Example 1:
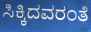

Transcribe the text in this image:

ಸಿಕ್ಕಿದವರಂತೆ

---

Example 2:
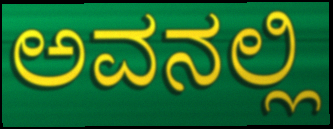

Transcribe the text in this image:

ಅವನಲ್ಲಿ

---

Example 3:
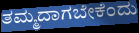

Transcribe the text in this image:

ತಮ್ಮದಾಗಬೇಕೆಂದು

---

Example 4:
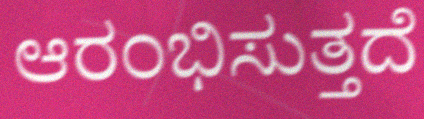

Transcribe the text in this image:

ಆರಂಭಿಸುತ್ತದೆ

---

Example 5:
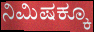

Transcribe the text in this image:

ನಿಮಿಷಕ್ಕೂ